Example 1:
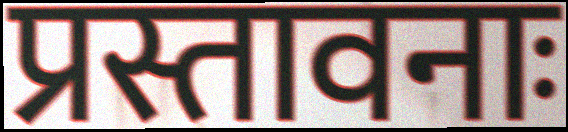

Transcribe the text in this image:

प्रस्तावनाः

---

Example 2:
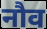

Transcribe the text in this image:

नौव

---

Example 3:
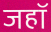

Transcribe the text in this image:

जहॉ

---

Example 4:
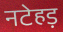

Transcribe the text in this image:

नटेहड़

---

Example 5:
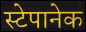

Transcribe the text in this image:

स्टेपानेक